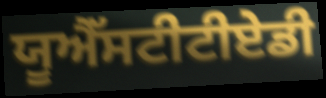
ਯੂਐੱਸਟੀਟੀਏਡੀ